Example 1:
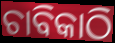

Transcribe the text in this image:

ଚାବିକାଠି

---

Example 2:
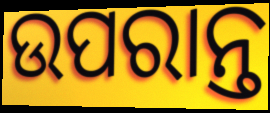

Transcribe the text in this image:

ଉପରାନ୍ତ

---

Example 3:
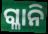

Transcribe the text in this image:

ଗ୍ଳାନି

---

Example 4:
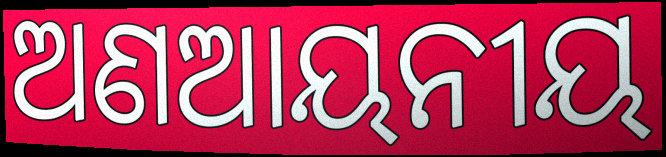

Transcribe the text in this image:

ଅଣଆୟନୀୟ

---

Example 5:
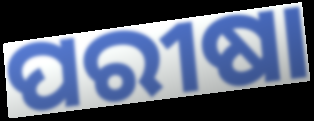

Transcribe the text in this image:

ପରୀଷା